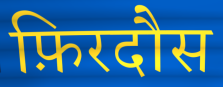
फ़िरदौस